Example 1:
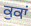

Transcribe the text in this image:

ਕੁਕਾਂ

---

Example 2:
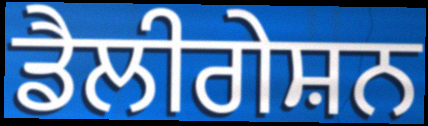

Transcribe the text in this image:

ਡੈਲੀਗੇਸ਼ਨ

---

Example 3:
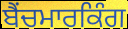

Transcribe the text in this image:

ਬੈਂਚਮਾਰਕਿੰਗ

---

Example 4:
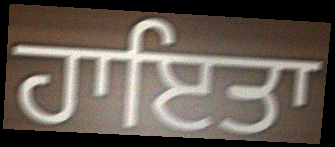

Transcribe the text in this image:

ਹਾਇਤਾ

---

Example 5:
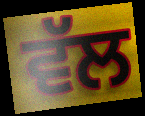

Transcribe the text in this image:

ਵੱਲ